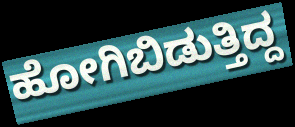
ಹೋಗಿಬಿಡುತ್ತಿದ್ದ